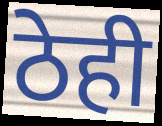
ठेही